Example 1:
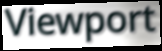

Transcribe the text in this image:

Viewport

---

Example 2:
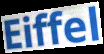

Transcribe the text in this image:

Eiffel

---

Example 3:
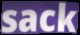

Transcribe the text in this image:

sack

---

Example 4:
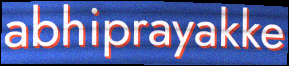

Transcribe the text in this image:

abhiprayakke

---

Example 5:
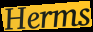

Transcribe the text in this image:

Herms